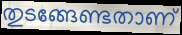
തുടങ്ങേണ്ടതാണ്